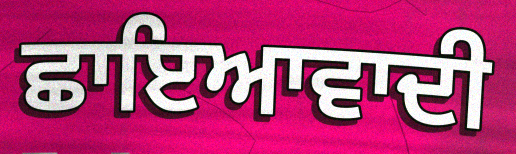
ਛਾਇਆਵਾਦੀ